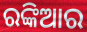
ରଙ୍କିଆର